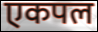
एकपल